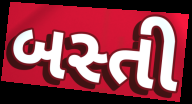
બસ્તી